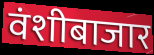
वंशीबाजार